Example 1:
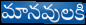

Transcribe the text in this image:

మానవులకి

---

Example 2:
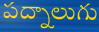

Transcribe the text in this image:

పద్నాలుగు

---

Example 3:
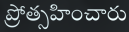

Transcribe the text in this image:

ప్రోత్సహించారు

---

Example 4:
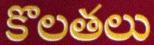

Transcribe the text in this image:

కొలతలు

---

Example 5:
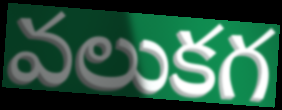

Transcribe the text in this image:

వలుకగ